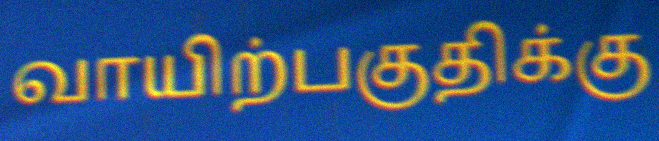
வாயிற்பகுதிக்கு